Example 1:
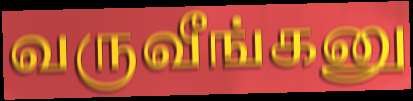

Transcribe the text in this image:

வருவீங்கனு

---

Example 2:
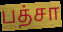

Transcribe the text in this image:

பத்சா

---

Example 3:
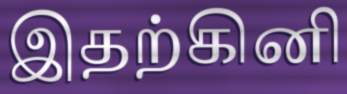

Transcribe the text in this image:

இதற்கினி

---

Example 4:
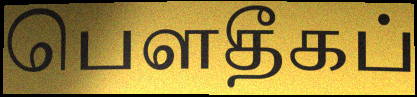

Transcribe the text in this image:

பௌதீகப்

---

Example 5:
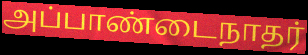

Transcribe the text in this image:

அப்பாண்டைநாதர்